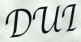
DUI